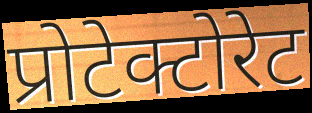
प्रोटेक्टोरेट